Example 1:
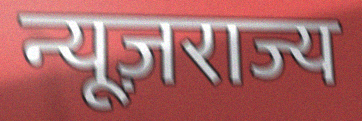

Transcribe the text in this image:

न्यूज़राज्य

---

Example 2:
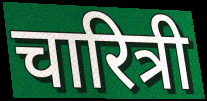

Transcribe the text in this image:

चारित्री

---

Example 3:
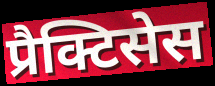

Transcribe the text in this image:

प्रैक्टिसेस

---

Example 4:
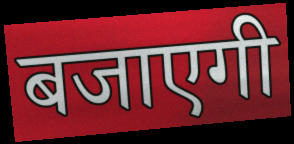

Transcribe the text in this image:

बजाएगी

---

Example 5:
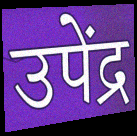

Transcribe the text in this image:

उपेंद्र